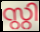
സ്റ്റി